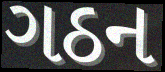
ગઠન